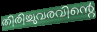
തിരിച്ചുവരവിന്റെ